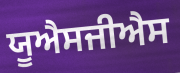
ਯੂਐਸਜੀਐਸ